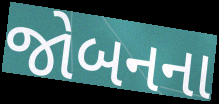
જોબનના